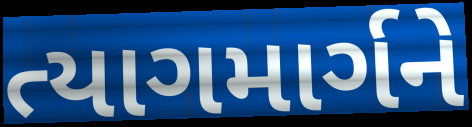
ત્યાગમાર્ગને